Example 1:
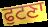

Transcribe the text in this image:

ਫੁਟਣਾ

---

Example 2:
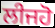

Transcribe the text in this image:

ਲੀਜਹੋ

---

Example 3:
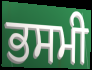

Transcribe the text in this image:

ਭਸਮੀ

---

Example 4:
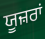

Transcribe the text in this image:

ਯੂਜ਼ਰਾਂ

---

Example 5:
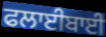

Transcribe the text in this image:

ਫਲਾਈਬਾਈ